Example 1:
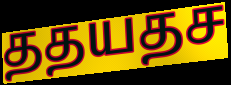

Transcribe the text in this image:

ததயதச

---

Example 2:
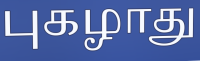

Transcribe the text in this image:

புகழாது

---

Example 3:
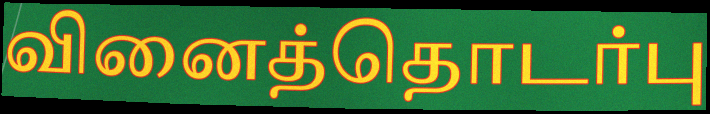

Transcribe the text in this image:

வினைத்தொடர்பு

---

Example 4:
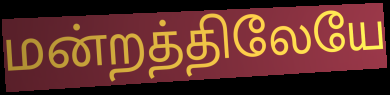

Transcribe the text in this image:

மன்றத்திலேயே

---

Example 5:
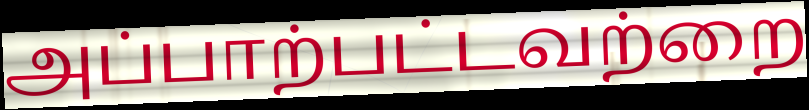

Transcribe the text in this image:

அப்பாற்பட்டவற்றை